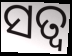
ସତ୍ୱ